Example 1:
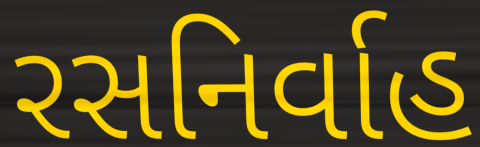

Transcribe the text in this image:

રસનિર્વાહ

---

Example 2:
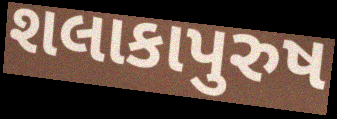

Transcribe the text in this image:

શલાકાપુરુષ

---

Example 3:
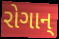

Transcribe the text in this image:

રોગાન્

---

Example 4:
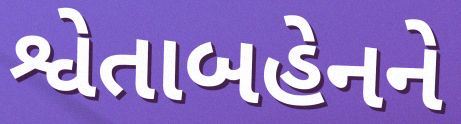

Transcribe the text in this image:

શ્વેતાબહેનને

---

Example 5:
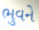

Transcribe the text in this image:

ભુવને